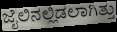
ಜೈಲಿನಲ್ಲಿಡಲಾಗಿತ್ತು